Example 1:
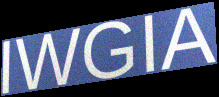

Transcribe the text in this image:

IWGIA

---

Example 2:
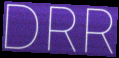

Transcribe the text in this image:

DRR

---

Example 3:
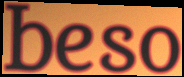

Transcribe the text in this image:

beso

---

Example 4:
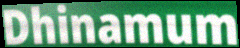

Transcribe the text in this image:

Dhinamum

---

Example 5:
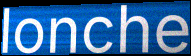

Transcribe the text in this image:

lonche